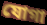
যোগা